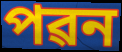
পৱন